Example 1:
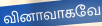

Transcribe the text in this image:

வினாவாகவே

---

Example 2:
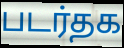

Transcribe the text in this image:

படர்தக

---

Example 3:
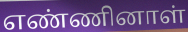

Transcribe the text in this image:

எண்ணினாள்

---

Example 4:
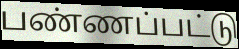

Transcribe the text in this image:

பண்ணப்பட்டு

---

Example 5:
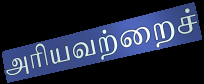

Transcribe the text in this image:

அரியவற்றைச்